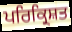
ਪਰਿਕ੍ਰਿਸ਼ਤ